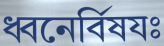
ধ্বনের্বিষযঃ